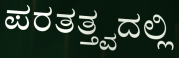
ಪರತತ್ತ್ವದಲ್ಲಿ